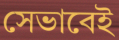
সেভাবেই